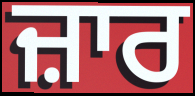
ਜ਼ਾਰ